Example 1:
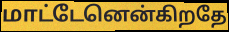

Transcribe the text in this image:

மாட்டேனென்கிறதே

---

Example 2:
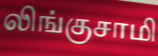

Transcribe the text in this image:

லிங்குசாமி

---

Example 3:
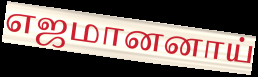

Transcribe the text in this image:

எஜமானனாய்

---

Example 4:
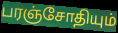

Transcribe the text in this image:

பரஞ்சோதியும்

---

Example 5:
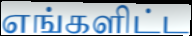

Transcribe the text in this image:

எங்களிட்ட